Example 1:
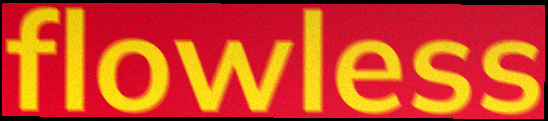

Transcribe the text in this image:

flowless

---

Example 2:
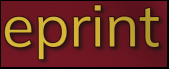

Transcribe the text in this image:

eprint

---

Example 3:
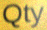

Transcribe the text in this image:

Qty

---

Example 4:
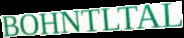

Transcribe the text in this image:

BOHNTLTAL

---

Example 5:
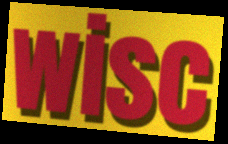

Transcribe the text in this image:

wisc